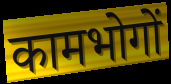
कामभोगों